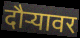
दौऱ्यावर